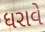
ધરાવે